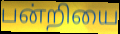
பன்றியை